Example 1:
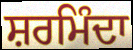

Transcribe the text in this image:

ਸ਼ਰਮਿੰਦਾ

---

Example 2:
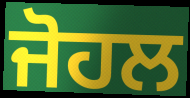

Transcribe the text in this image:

ਜੋਹਲ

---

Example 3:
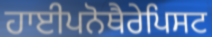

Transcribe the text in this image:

ਹਾਈਪਨੋਥੈਰੇਪਿਸਟ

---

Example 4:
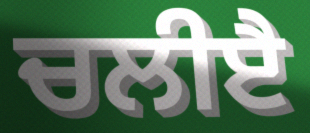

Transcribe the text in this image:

ਚਲੀੲੈ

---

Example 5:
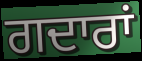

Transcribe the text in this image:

ਗਦਾਰਾਂ